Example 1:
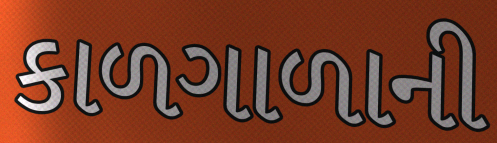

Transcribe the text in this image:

કાળગાળાની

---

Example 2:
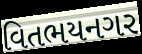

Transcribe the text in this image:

વિતભયનગર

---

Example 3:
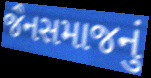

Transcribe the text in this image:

જૈનસમાજનું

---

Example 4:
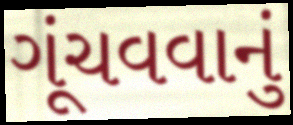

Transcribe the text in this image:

ગૂંચવવાનું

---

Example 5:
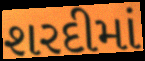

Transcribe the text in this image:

શરદીમાં